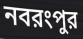
নবরংপুর